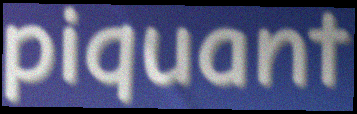
piquant